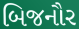
બિજનૌર